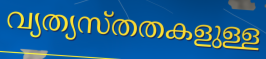
വ്യത്യസ്തതകളുള്ള